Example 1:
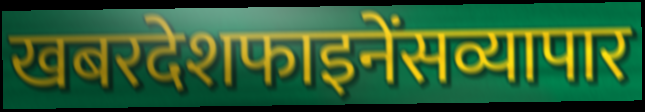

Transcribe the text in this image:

खबरदेशफाइनेंसव्यापार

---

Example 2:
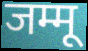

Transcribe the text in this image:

जम्मू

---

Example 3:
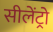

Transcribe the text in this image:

सीलेंट्रो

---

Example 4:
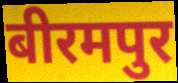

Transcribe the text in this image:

बीरमपुर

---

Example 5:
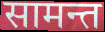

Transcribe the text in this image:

सामन्त